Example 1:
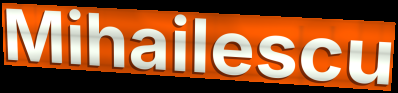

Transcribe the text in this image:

Mihailescu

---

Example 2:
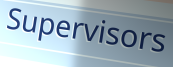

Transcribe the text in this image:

Supervisors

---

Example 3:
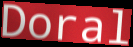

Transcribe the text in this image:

Doral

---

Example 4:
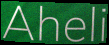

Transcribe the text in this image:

Aheli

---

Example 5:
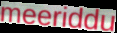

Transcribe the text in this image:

meeriddu